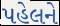
પહેલને